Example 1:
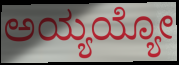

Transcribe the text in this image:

ಅಯ್ಯಯ್ಯೋ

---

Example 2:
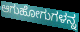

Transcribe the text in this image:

ಆಗುಹೋಗುಗಳನ್ನ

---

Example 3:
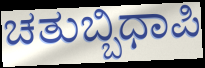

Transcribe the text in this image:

ಚತುಬ್ಬಿಧಾಪಿ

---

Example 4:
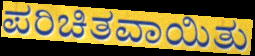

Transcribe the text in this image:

ಪರಿಚಿತವಾಯಿತು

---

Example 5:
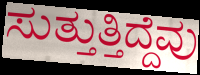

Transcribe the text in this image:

ಸುತ್ತುತ್ತಿದ್ದೆವು